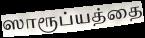
ஸாரூப்யத்தை